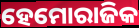
ହେମୋରାଜିକ